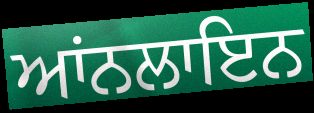
ਆਂਨਲਾਇਨ